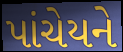
પાંચેયને